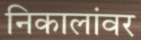
निकालांवर